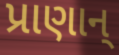
પ્રાણાન્